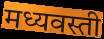
मध्यवस्ती